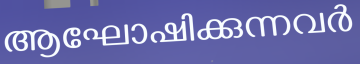
ആഘോഷിക്കുന്നവർ